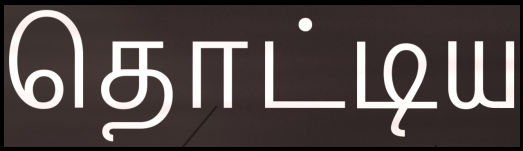
தொட்டிய